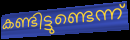
കണ്ടിട്ടുണ്ടെന്ന്